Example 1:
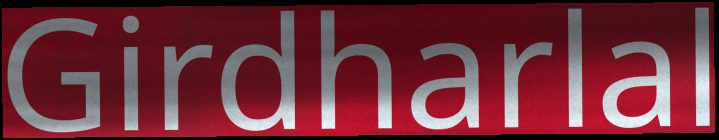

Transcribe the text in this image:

Girdharlal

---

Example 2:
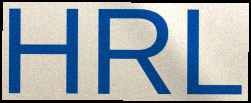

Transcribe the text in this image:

HRL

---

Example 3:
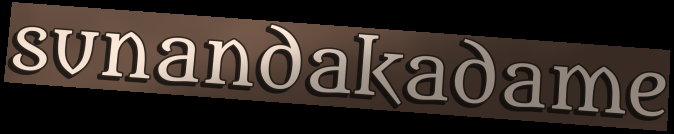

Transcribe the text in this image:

sunandakadame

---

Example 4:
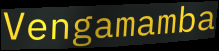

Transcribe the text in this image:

Vengamamba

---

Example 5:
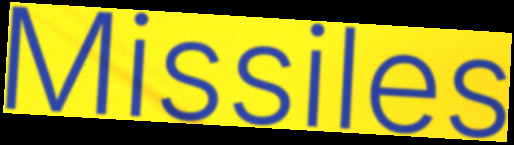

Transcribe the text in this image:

Missiles